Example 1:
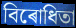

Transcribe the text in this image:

বিৰোধিতা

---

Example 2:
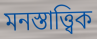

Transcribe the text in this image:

মনস্তাত্ত্বিক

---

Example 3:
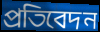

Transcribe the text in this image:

প্ৰতিবেদন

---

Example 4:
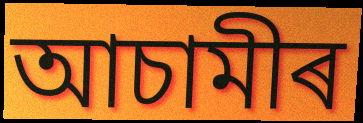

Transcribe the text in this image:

আচামীৰ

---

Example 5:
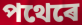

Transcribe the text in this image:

পথেৰে